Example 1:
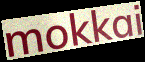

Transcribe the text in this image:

mokkai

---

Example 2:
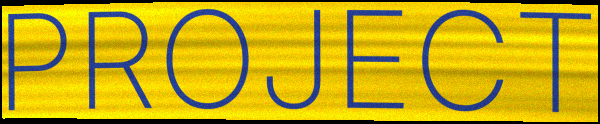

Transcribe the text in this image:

PROJECT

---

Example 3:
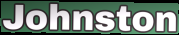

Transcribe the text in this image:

Johnston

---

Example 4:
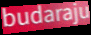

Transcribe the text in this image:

budaraju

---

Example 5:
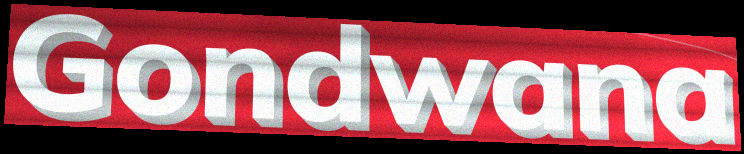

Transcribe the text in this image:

Gondwana